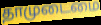
தாமுடைமை